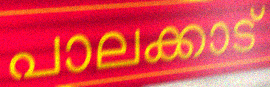
പാലക്കാട്